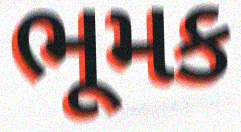
ભૂમક